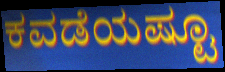
ಕವಡೆಯಷ್ಟೂ